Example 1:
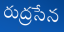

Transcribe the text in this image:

రుద్రసేన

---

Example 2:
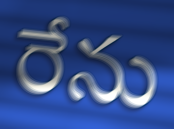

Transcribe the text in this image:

రేను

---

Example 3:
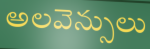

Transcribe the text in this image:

అలవెన్సులు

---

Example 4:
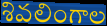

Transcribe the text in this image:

శివలింగాల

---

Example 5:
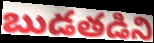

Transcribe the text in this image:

బుడతడిని